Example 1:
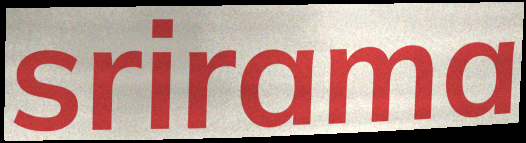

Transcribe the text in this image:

srirama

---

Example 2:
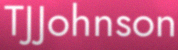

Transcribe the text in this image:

TJJohnson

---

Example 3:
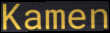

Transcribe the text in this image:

Kamen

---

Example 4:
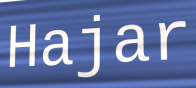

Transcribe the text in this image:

Hajar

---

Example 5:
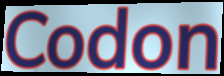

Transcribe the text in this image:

Codon